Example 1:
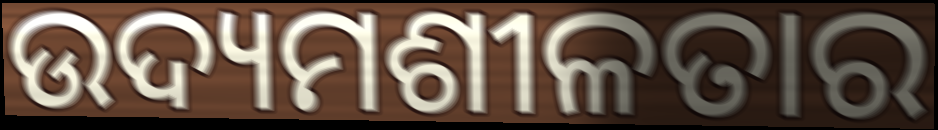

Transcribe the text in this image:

ଉଦ୍ୟମଶୀଳତାର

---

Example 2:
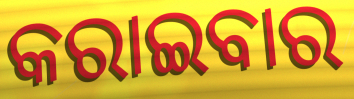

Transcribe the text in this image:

କରାଇବାର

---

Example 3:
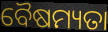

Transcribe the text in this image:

ବୈଷମ୍ୟତା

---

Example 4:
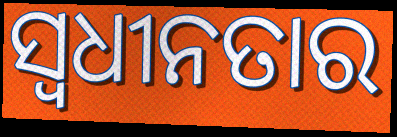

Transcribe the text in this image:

ସ୍ବଧୀନତାର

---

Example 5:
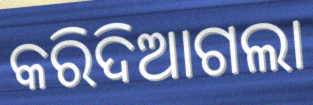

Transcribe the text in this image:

କରିଦିଆଗଲା